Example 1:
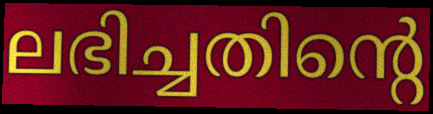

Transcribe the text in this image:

ലഭിച്ചതിന്റെ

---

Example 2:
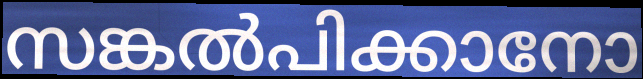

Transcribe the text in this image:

സങ്കൽപിക്കാനോ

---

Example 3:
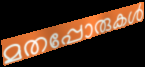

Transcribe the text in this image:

മതപ്പോരുകൾ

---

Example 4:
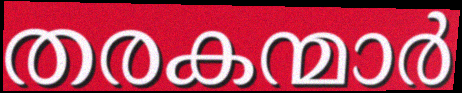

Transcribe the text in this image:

തരകന്മാർ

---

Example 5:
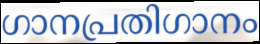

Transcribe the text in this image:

ഗാനപ്രതിഗാനം